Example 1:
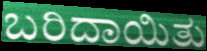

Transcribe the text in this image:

ಬರಿದಾಯಿತು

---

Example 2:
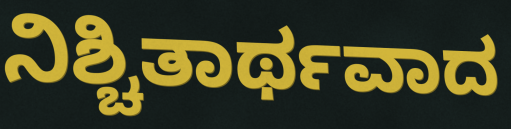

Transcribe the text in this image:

ನಿಶ್ಚಿತಾರ್ಥವಾದ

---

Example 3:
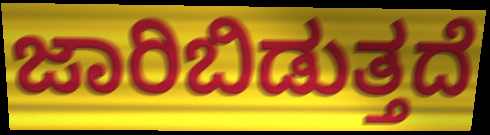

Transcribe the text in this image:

ಜಾರಿಬಿಡುತ್ತದೆ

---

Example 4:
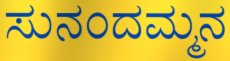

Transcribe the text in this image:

ಸುನಂದಮ್ಮನ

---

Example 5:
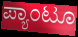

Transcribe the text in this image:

ಪ್ಯಾಂಟೂ